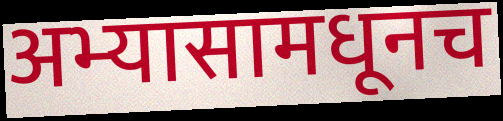
अभ्यासामधूनच